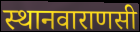
स्थानवाराणसी